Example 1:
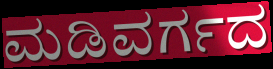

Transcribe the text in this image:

ಮಡಿವರ್ಗದ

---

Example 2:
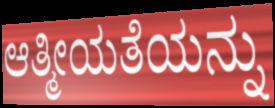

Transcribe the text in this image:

ಆತ್ಮೀಯತೆಯನ್ನು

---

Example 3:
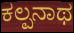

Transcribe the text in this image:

ಕಲ್ಪನಾಥ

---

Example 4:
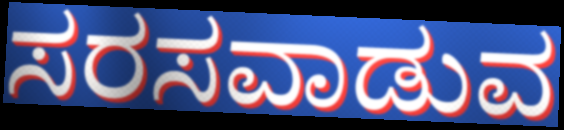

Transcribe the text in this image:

ಸರಸವಾಡುವ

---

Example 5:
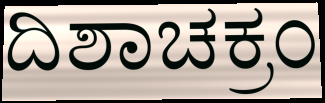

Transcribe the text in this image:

ದಿಶಾಚಕ್ರಂ